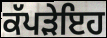
ਕੱਪੜੇਇਹ